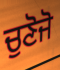
ਚੁਣੋਜੋ